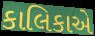
કાલિકાએ